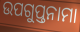
ଉପଗୁପ୍ତନାମା